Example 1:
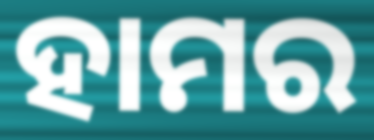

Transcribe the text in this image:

ହାମର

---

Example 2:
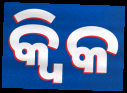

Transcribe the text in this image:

କ୍ୱିକ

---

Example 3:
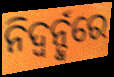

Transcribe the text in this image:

ନିଦ୍ଵର୍ନ୍ଦ୍ୱରେ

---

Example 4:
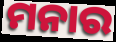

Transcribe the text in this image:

ମନାର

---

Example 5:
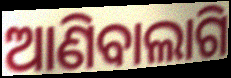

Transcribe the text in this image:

ଆଣିବାଲାଗି